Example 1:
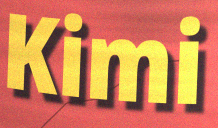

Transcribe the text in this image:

Kimi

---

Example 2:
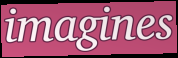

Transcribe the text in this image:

imagines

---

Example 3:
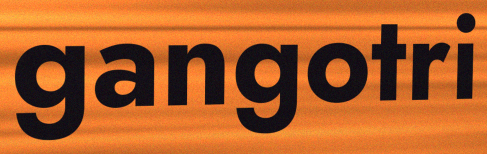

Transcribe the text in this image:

gangotri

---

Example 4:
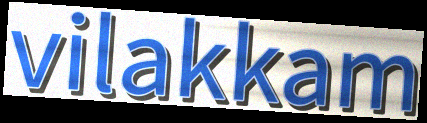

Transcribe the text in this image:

vilakkam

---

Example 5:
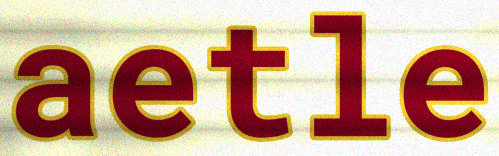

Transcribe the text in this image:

aetle